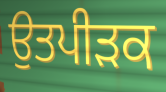
ਉਤਪੀੜਕ